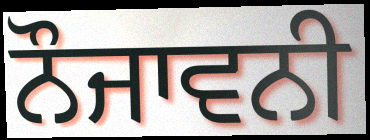
ਨੌਜਾਵਨੀ